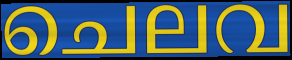
ചെലവ